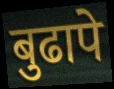
बुढापे